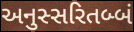
અનુસ્સરિતબ્બં